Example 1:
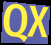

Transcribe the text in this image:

QX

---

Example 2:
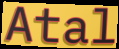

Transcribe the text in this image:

Atal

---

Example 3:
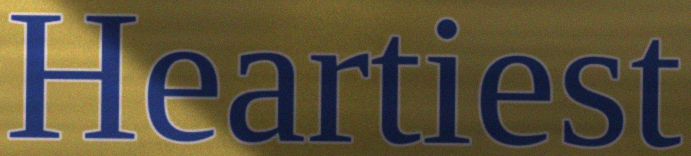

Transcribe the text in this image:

Heartiest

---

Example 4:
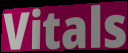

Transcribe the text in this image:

Vitals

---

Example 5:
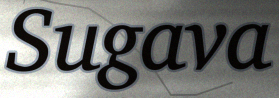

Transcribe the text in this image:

Sugava